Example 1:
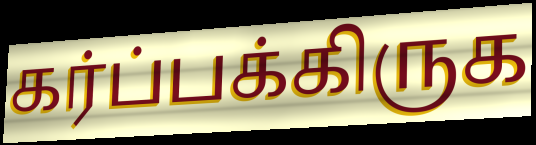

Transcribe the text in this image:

கர்ப்பக்கிருக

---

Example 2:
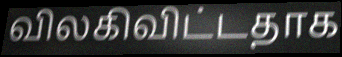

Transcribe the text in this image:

விலகிவிட்டதாக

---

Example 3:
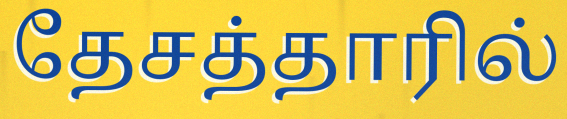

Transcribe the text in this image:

தேசத்தாரில்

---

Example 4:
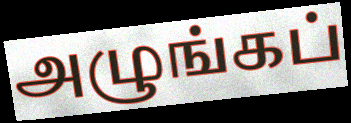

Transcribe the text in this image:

அழுங்கப்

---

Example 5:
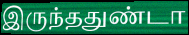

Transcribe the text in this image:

இருந்ததுண்டா